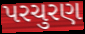
પરચુરણ